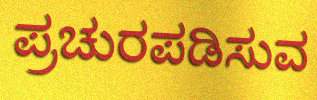
ಪ್ರಚುರಪಡಿಸುವ